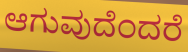
ಆಗುವುದೆಂದರೆ